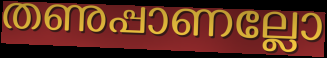
തണുപ്പാണല്ലോ